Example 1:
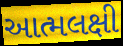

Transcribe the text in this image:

આત્મલક્ષી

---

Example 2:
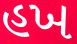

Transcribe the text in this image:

હખ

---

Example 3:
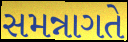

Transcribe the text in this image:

સમન્નાગતે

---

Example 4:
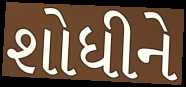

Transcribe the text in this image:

શોધીને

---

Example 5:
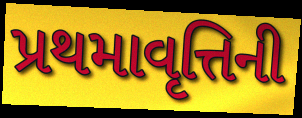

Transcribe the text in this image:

પ્રથમાવૃત્તિની